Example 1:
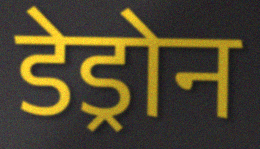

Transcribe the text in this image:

डेड्रोन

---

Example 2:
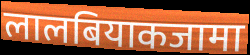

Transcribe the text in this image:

लालबियाकजामा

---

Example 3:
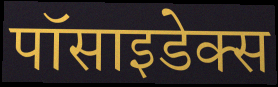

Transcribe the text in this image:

पॉसाइडेक्स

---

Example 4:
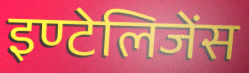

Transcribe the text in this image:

इण्टेलिजेंस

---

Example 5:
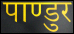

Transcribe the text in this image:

पाण्डुर